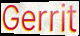
Gerrit